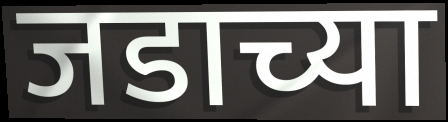
जडाच्या